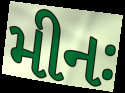
મીનઃ